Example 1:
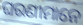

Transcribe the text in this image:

ଘରଣୀମାନେ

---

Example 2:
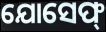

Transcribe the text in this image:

ଯୋସେଫ୍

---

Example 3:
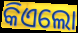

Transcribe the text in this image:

କିଏଲୋ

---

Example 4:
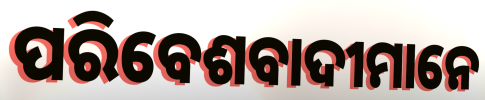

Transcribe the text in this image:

ପରିବେଶବାଦୀମାନେ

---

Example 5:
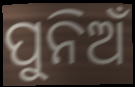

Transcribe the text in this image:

ପୁନିଅଁ